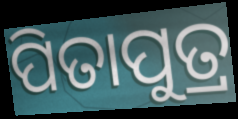
ପିତାପୁତ୍ର